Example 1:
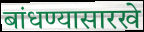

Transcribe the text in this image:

बांधण्यासारखे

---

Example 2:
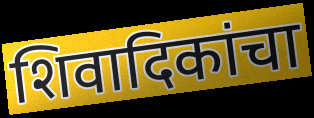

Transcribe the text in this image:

शिवादिकांचा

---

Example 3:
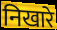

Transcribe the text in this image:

निखारे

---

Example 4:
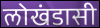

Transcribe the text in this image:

लोखंडासी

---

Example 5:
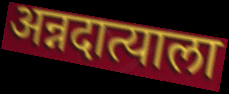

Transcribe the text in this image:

अन्नदात्याला